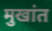
मुखांत